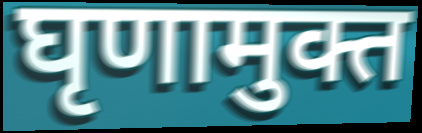
घृणामुक्त